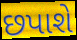
છપાશે